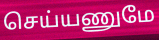
செய்யணுமே